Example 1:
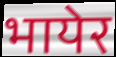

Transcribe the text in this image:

भायेर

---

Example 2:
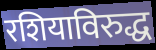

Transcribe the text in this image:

रशियाविरुद्ध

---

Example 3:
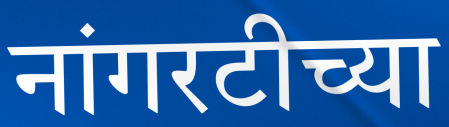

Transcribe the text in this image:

नांगरटीच्या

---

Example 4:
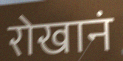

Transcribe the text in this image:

रोखानं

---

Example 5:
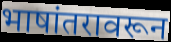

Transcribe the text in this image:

भाषांतरावरून